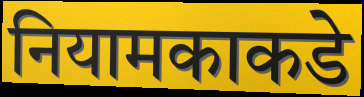
नियामकाकडे